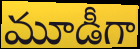
మూడీగా